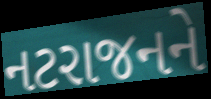
નટરાજનને